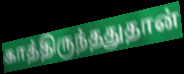
காத்திருந்ததுதான்